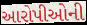
આરોપીઓની